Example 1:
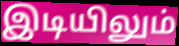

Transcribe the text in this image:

இடியிலும்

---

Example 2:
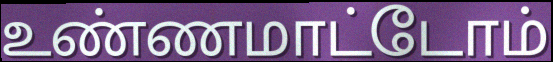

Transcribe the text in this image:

உண்ணமாட்டோம்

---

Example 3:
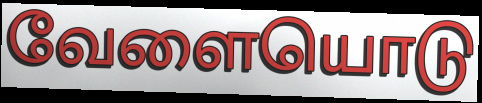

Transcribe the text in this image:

வேளையொடு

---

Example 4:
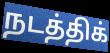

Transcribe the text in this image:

நடத்திக்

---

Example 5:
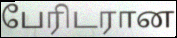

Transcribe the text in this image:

பேரிடரான